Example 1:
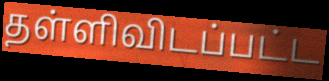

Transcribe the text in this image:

தள்ளிவிடப்பட்ட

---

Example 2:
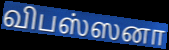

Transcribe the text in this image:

விபஸ்ஸனா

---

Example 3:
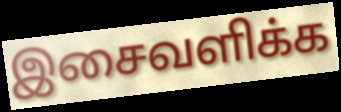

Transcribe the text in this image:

இசைவளிக்க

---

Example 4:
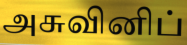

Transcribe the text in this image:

அசுவினிப்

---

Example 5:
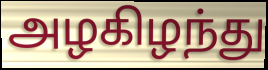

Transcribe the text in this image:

அழகிழந்து